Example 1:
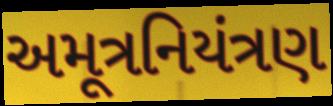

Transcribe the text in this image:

અમૂત્રનિયંત્રણ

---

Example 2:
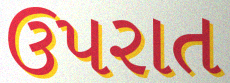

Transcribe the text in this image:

ઉપરાત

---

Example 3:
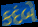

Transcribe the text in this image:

કદંબે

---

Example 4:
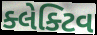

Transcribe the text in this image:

ક્લેક્ટિવ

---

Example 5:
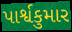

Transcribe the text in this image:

પાર્શ્વકુમાર